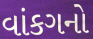
વાંકગનો